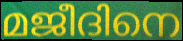
മജീദിനെ